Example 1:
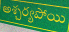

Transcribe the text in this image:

అశ్చర్యపోయి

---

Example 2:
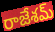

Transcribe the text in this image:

రాజేశమ్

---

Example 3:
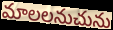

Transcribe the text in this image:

మాలలనుచును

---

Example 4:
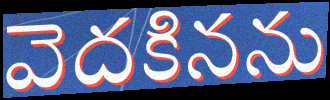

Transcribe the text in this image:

వెదకినను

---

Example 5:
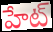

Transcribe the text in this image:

హేట్